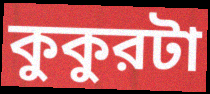
কুকুরটা